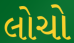
લોચો